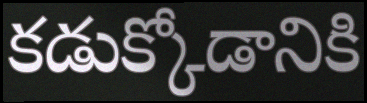
కడుక్కోడానికి